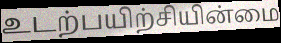
உடற்பயிற்சியின்மை